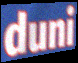
duni